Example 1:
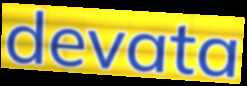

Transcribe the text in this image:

devata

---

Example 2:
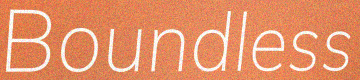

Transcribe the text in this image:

Boundless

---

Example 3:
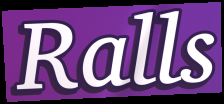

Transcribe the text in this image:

Ralls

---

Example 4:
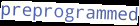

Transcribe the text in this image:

preprogrammed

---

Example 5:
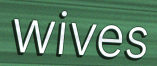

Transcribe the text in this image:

wives